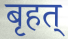
बृहत्